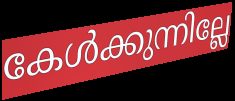
കേൾക്കുന്നില്ലേ